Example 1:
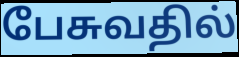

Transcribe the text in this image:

பேசுவதில்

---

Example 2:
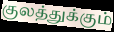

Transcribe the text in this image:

குலத்துக்கும்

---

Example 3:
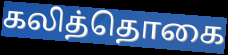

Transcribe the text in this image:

கலித்தொகை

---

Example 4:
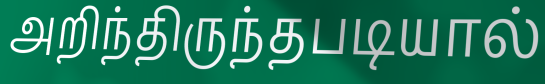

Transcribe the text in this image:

அறிந்திருந்தபடியால்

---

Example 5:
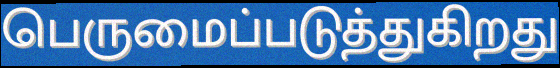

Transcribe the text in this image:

பெருமைப்படுத்துகிறது